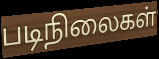
படிநிலைகள்